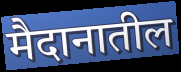
मैदानातील